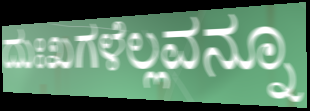
ದುಃಖಗಳೆಲ್ಲವನ್ನೂ